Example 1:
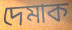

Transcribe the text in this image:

দেমাক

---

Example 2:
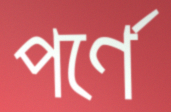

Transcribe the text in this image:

পর্ণে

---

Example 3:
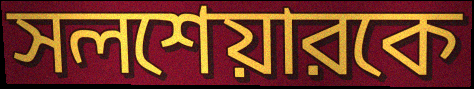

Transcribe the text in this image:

সলশেয়ারকে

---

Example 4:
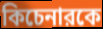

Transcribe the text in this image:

কিচেনারকে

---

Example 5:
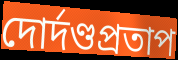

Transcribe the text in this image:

দোর্দণ্ডপ্রতাপ